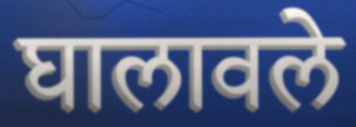
घालावले